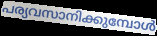
പര്യവസാനിക്കുമ്പോൾ